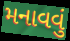
મનાવવું